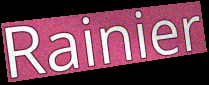
Rainier